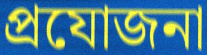
প্রযোজনা